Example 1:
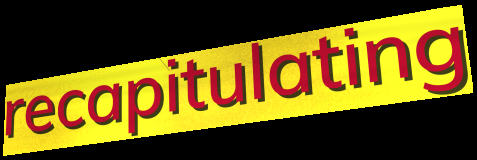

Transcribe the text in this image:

recapitulating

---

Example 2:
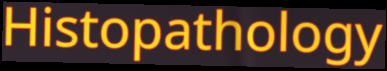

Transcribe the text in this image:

Histopathology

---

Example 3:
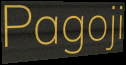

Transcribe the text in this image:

Pagoji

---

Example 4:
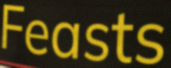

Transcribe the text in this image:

Feasts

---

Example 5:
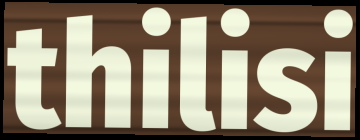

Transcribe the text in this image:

thilisi